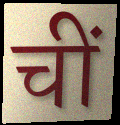
चीं